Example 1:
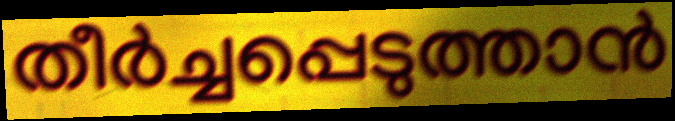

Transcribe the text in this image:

തീർച്ചപ്പെടുത്താൻ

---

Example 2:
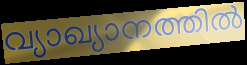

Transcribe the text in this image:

വ്യാഖ്യാനത്തിൽ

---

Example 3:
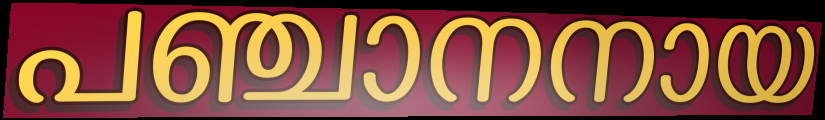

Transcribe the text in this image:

പഞ്ചാനനായ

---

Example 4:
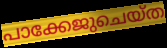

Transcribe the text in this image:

പാക്കേജുചെയ്ത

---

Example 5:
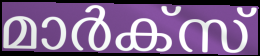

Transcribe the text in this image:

മാർക്‌സ്